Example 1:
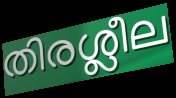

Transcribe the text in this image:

തിരശ്ലീല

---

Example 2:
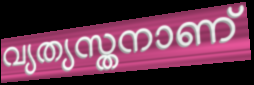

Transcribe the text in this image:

വ്യത്യസ്തനാണ്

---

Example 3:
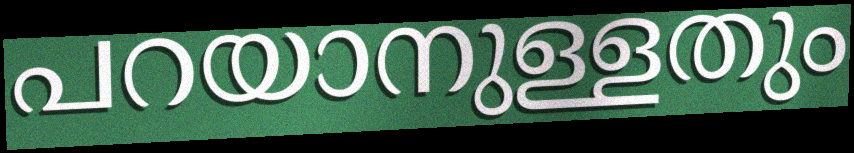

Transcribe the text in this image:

പറയാനുള്ളതും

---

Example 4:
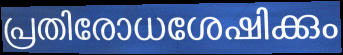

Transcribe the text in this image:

പ്രതിരോധശേഷിക്കും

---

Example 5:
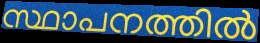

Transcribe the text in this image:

സ്ഥാപനത്തിൽ